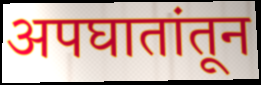
अपघातांतून